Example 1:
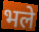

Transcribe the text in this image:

भले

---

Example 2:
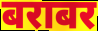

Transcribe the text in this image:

बराबर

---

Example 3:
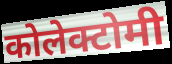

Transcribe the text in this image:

कोलेक्टोमी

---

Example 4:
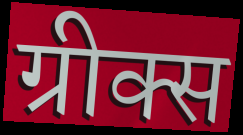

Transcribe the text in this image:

ग्रीक्स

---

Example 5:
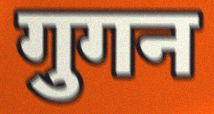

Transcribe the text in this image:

गुगन